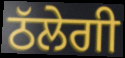
ਠੱਲੇਗੀ